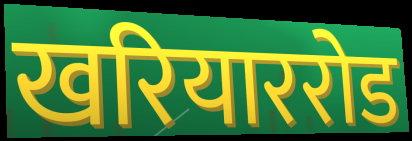
खरियाररोड